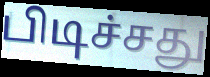
பிடிச்சது